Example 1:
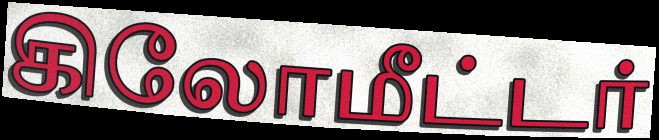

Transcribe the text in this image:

கிலோமீட்டர்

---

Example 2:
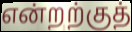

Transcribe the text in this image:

என்றற்குத்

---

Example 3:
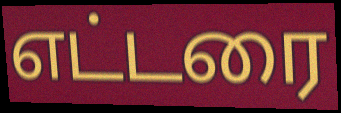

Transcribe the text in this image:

எட்டரை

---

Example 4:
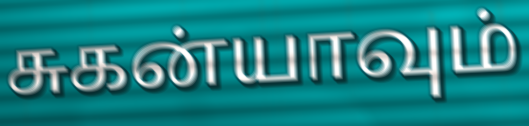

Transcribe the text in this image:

சுகன்யாவும்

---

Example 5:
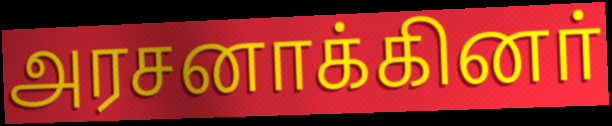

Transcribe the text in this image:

அரசனாக்கினர்